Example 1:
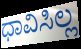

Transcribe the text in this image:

ಧಾವಿಸಿಲ್ಲ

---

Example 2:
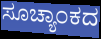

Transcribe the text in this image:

ಸೂಚ್ಯಾಂಕದ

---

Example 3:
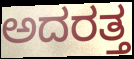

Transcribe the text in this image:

ಅದರತ್ತ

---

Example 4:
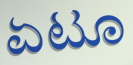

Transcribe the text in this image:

ಏಟೂ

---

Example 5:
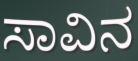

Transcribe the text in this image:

ಸಾವಿನ